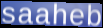
saaheb